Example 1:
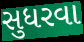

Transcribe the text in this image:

સુધરવા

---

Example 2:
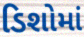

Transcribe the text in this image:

ડિશોમાં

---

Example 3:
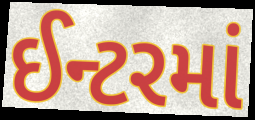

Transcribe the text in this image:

ઈન્ટરમાં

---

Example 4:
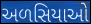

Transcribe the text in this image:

અળસિયાઓ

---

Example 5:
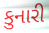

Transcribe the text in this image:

કુનારી